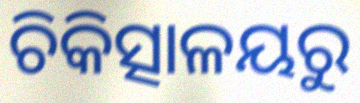
ଚିକିତ୍ସାଳୟରୁ